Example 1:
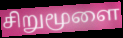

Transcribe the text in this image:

சிறுமூளை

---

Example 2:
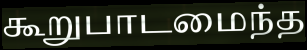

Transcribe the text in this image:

கூறுபாடமைந்த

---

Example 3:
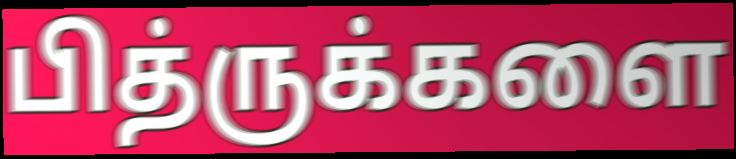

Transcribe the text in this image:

பித்ருக்களை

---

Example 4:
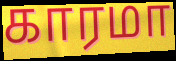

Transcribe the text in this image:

காரமா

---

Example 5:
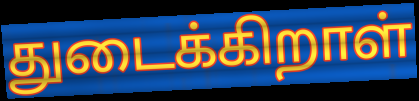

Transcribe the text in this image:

துடைக்கிறாள்